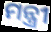
ମନ୍ତ୍ରୀ